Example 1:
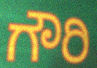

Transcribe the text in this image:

ಗೌರಿ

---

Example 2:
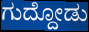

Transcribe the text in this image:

ಗುದ್ದೋಡು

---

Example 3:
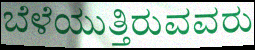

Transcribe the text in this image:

ಬೆಳೆಯುತ್ತಿರುವವರು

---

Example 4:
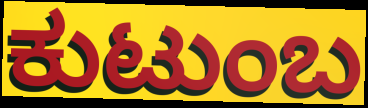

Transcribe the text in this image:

ಕುಟುಂಬ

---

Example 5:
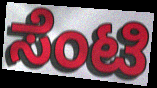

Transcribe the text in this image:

ಸೆಂಟಿ